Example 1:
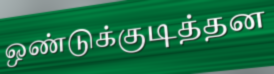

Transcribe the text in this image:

ஒண்டுக்குடித்தன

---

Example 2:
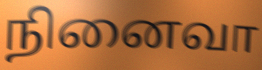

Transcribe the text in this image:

நினைவா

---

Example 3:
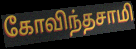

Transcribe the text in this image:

கோவிந்தசாமி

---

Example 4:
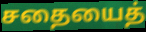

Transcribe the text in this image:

சதையைத்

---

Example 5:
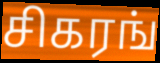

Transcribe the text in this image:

சிகரங்